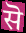
सॆ